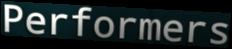
Performers